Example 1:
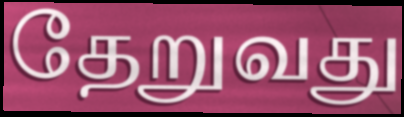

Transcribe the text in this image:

தேறுவது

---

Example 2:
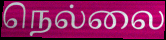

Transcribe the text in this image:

நெல்லை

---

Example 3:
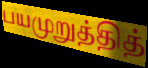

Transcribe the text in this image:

பயமுறுத்தித்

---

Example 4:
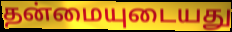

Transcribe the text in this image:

தன்மையுடையது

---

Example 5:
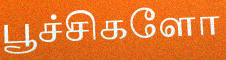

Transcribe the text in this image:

பூச்சிகளோ